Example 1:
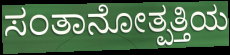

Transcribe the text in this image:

ಸಂತಾನೋತ್ಪತ್ತಿಯ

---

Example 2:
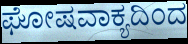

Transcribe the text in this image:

ಘೋಷವಾಕ್ಯದಿಂದ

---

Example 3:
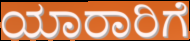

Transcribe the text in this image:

ಯಾರಾರಿಗೆ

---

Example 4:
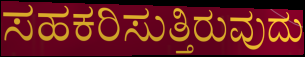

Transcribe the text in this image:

ಸಹಕರಿಸುತ್ತಿರುವುದು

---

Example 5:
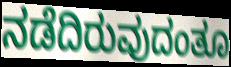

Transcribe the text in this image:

ನಡೆದಿರುವುದಂತೂ